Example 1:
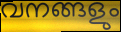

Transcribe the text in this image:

വനങ്ങളും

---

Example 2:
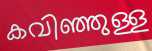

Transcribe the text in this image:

കവിഞ്ഞുള്ള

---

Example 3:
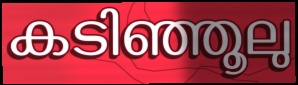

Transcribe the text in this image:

കടിഞ്ഞൂലു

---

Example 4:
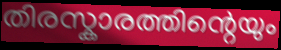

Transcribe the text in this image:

തിരസ്കാരത്തിന്റെയും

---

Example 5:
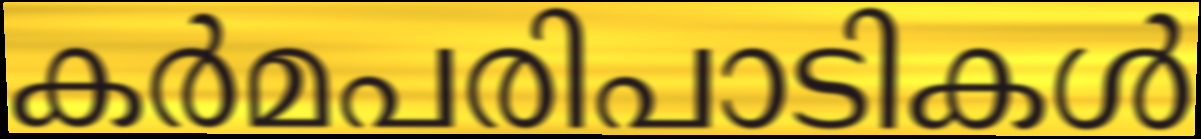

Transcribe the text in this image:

കർമപരിപാടികൾ